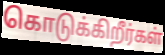
கொடுக்கிறீர்கள்